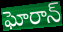
ఘోరాన్